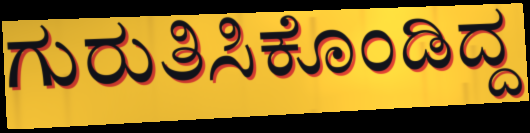
ಗುರುತಿಸಿಕೊಂಡಿದ್ದ